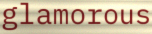
glamorous